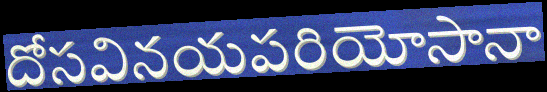
దోసవినయపరియోసానా